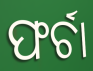
ଫର୍ଚା